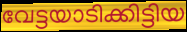
വേട്ടയാടിക്കിട്ടിയ